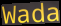
Wada